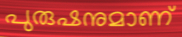
പുരുഷനുമാണ്